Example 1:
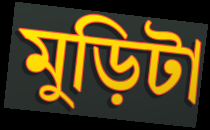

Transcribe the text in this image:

মুড়িটা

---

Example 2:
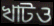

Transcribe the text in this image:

খাটও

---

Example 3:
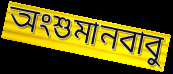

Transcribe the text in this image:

অংশুমানবাবু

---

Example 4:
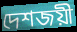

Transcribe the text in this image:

দেশজয়ী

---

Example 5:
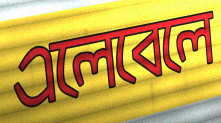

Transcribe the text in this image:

এলেবেলে